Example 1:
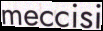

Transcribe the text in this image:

meccisi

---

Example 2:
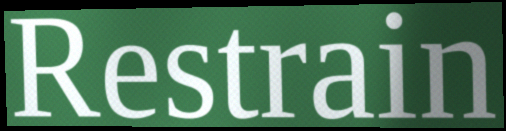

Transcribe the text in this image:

Restrain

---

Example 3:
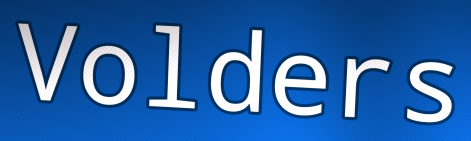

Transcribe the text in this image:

Volders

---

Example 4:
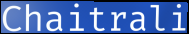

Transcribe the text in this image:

Chaitrali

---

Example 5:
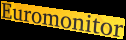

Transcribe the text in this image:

Euromonitor